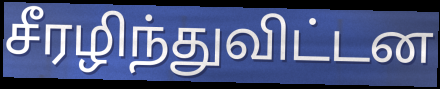
சீரழிந்துவிட்டன